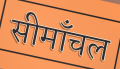
सीमाँचल